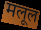
मलूल